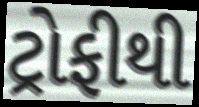
ટ્રોફીથી